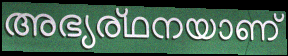
അഭ്യര്ഥനയാണ്